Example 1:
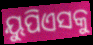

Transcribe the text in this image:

ୟୁପିଏସକୁ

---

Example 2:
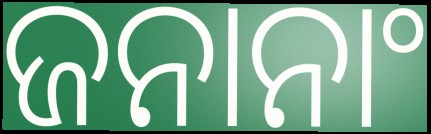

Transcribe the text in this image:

ଜନାନାଂ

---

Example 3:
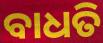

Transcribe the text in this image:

ବାଧତି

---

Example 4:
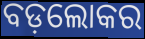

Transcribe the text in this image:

ବଡ଼ଲୋକର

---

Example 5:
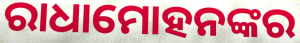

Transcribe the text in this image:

ରାଧାମୋହନଙ୍କର